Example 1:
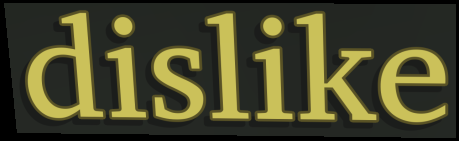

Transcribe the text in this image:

dislike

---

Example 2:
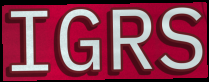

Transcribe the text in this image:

IGRS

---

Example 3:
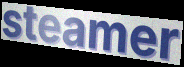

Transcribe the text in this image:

steamer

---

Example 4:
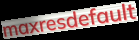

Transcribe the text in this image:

maxresdefault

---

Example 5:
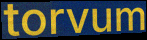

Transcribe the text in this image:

torvum